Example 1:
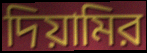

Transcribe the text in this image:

দিয়ামির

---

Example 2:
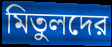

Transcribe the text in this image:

মিতুলদের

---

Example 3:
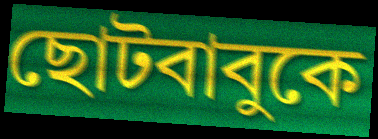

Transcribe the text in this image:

ছোটবাবুকে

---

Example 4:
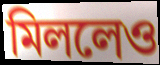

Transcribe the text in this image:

মিললেও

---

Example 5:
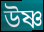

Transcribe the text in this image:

উষ্ণ